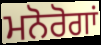
ਮਨੋਰੋਗਾਂ